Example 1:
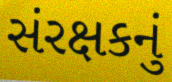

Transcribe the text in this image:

સંરક્ષકનું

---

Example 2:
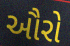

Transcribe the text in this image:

ઔરો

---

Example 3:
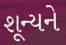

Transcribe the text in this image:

શૂન્યને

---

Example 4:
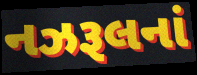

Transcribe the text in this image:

નઝરૂલનાં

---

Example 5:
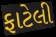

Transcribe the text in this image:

ફાટેલી